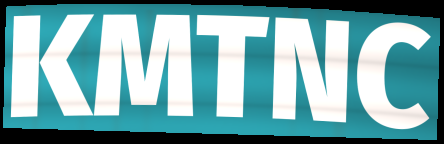
KMTNC